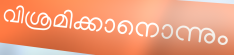
വിശ്രമിക്കാനൊന്നും